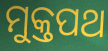
ମୁକ୍ତପଥ